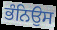
ਭੰਨਿਉਸ